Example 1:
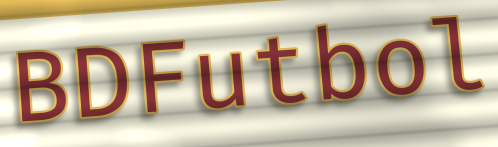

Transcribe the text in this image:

BDFutbol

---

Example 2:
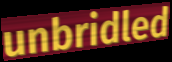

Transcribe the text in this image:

unbridled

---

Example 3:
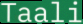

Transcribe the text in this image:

Taali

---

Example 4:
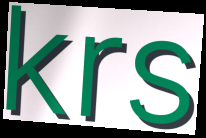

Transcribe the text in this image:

krs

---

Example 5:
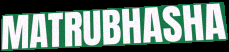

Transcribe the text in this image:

MATRUBHASHA